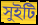
সুইটি